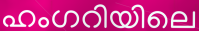
ഹംഗറിയിലെ